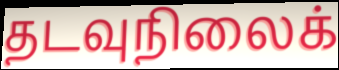
தடவுநிலைக்